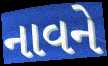
નાવને